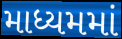
માધ્યમમાં